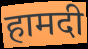
हामदी